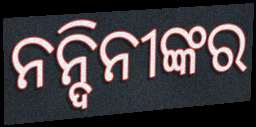
ନନ୍ଦିନୀଙ୍କର